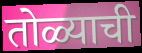
तोळ्याची